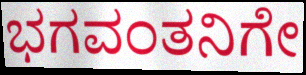
ಭಗವಂತನಿಗೇ